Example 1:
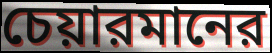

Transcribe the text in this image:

চেয়ারমানের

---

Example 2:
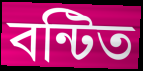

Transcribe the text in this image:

বন্টিত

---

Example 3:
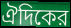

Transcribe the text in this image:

ঐদিকের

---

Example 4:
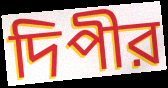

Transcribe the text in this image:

দিপীর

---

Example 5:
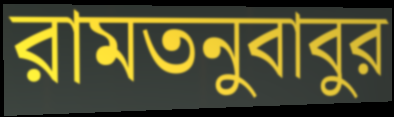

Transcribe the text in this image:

রামতনুবাবুর